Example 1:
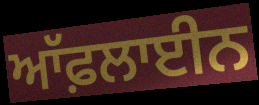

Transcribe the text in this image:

ਆੱਫ਼ਲਾਈਨ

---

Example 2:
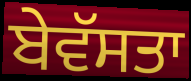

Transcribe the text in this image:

ਬੇਵੱਸਤਾ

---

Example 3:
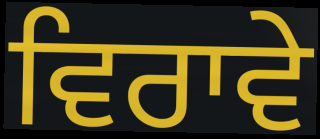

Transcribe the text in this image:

ਵਿਰਾਵੇ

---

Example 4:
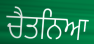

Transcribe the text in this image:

ਚੈਤਨਿਆ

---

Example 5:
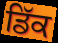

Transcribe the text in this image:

ਡਿੱਕ